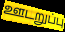
ஊடறுப்பு